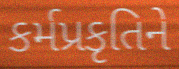
કર્મપ્રકૃતિને